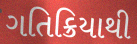
ગતિક્રિયાથી